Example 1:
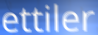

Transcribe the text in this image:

ettiler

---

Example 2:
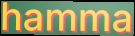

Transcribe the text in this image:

hamma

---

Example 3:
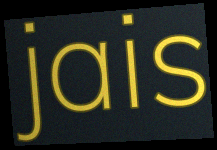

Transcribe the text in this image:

jais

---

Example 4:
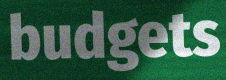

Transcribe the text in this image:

budgets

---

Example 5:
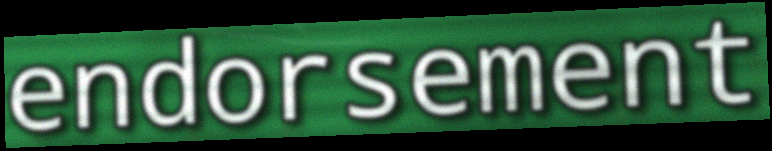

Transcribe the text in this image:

endorsement